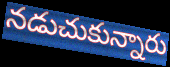
నడుచుకున్నారు